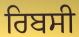
ਰਿਬਸੀ